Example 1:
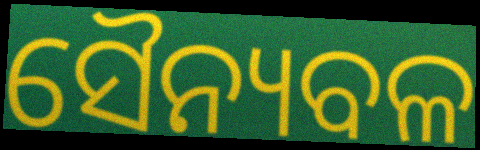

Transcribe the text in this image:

ସୈନ୍ୟବଳ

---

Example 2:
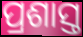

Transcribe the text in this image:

ପ୍ରଶାସ୍ତ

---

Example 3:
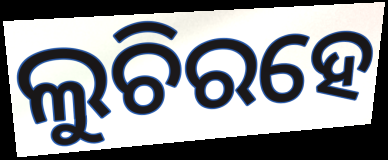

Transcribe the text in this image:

ଲୁଚିରହେ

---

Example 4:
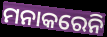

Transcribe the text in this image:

ମନାକରେନି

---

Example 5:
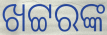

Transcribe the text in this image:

ଖଟ୍ଟରଙ୍କ